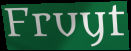
Fruyt